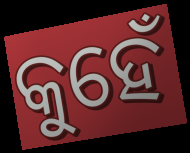
କୁହେଁ